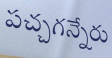
పచ్చగన్నేరు